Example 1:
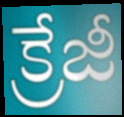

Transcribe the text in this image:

క్రేజీ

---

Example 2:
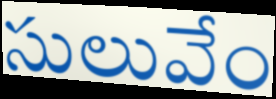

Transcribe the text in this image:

సులువేం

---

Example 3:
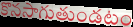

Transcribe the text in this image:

కొనసాగుతుండటం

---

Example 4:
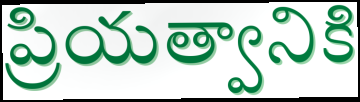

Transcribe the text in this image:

ప్రియత్వానికి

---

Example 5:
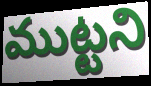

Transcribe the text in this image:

ముట్టని